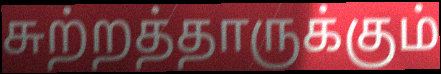
சுற்றத்தாருக்கும்